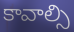
కావాల్సి